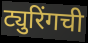
ट्युरिंगची